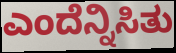
ಎಂದೆನ್ನಿಸಿತು